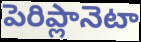
పెరిప్లానెటా